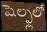
షెల్ఫ్లలో